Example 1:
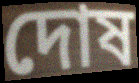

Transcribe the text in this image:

দোষ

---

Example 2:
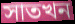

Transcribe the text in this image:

সাতখন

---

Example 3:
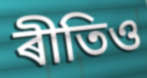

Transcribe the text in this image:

ৰীতিও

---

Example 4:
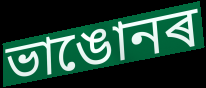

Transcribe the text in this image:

ভাঙোনৰ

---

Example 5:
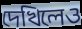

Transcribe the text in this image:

দেখিলেও